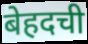
बेहदची